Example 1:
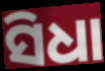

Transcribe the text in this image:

ସିଧା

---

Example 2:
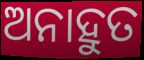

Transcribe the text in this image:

ଅନାହୁତ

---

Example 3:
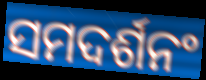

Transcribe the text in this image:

ସମଦର୍ଶନଂ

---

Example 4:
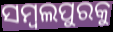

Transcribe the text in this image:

ସମ୍ୱଲପୁରକୁ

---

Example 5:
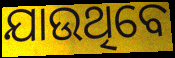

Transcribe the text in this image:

ଯାଉଥିବେ